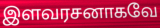
இளவரசனாகவே